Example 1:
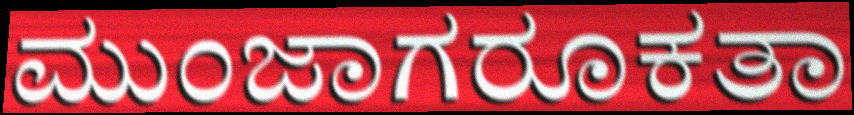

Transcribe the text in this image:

ಮುಂಜಾಗರೂಕತಾ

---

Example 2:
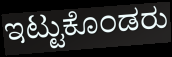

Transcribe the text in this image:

ಇಟ್ಟುಕೊಂಡರು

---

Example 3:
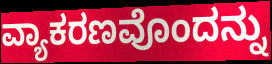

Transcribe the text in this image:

ವ್ಯಾಕರಣವೊಂದನ್ನು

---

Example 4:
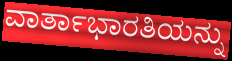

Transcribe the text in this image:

ವಾರ್ತಾಭಾರತಿಯನ್ನು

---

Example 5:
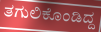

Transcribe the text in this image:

ತಗುಲಿಕೊಂಡಿದ್ದ